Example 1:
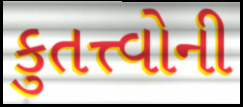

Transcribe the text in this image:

કુતત્ત્વોની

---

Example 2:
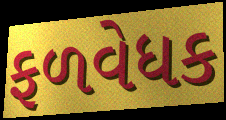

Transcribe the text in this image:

ફળવેધક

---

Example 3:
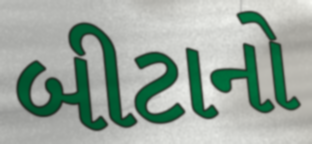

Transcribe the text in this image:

બીટાનો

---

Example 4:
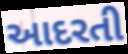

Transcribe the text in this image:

આદરતી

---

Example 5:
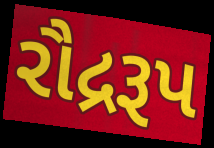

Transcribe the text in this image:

રૌદ્રરૂપ